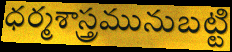
ధర్మశాస్త్రమునుబట్టి